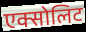
एक्सोलिट